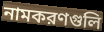
নামকরণগুলি